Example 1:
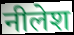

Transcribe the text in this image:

नीलेश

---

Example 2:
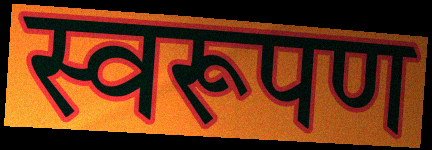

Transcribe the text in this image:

स्वरूपण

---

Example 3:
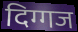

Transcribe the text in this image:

दिग्गज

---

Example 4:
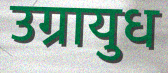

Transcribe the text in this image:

उग्रायुध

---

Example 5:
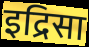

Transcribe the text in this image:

इद्रिसा